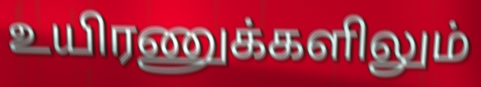
உயிரணுக்களிலும்